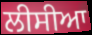
ਲੀਸੀਆ